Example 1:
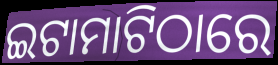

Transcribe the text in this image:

ଇଟାମାଟିଠାରେ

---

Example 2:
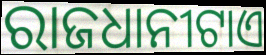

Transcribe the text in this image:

ରାଜଧାନୀଟାଏ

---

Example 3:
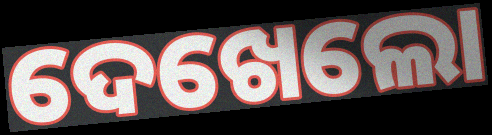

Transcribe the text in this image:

ଦେଖେଲୋ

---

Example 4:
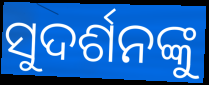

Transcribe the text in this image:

ସୁଦର୍ଶନଙ୍କୁ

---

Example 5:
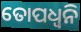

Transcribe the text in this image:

ତୋପଧ୍ୱନି